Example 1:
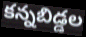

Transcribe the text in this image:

కన్నబిడ్డల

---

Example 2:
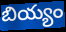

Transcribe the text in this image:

బియ్యం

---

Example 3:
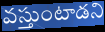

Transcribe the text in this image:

వస్తుంటాడని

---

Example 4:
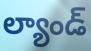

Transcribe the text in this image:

ల్యాండ్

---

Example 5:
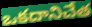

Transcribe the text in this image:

ఒకదానిచేత